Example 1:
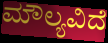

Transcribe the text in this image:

ಮೌಲ್ಯವಿದೆ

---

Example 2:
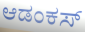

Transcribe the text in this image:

ಆಡಂಕಸ್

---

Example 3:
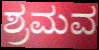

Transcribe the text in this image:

ಶ್ರಮವ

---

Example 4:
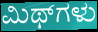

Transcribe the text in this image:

ಮಿಥ್‌ಗಳು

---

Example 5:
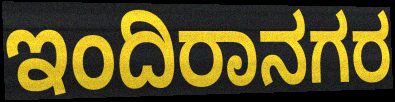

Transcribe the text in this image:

ಇಂದಿರಾನಗರ